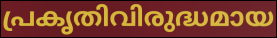
പ്രകൃതിവിരുദ്ധമായ